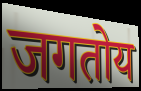
जगतोय